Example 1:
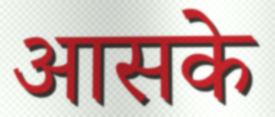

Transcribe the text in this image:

आसके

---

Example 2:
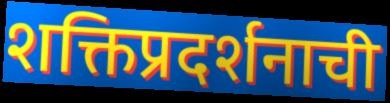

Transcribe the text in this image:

शक्तिप्रदर्शनाची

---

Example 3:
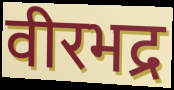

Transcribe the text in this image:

वीरभद्र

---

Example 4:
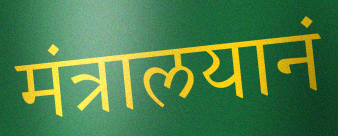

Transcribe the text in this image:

मंत्रालयानं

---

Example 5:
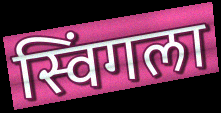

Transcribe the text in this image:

स्विंगला